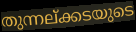
തുന്നല്ക്കടയുടെ